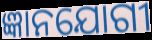
ଜ୍ଞାନଯୋଗୀ